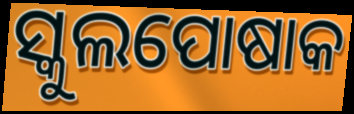
ସ୍କୁଲପୋଷାକ